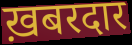
ख़बरदार